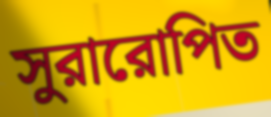
সুরারোপিত